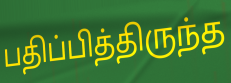
பதிப்பித்திருந்த